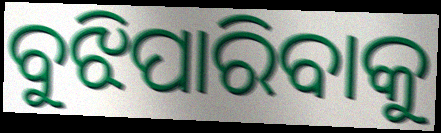
ବୁଝିପାରିବାକୁ